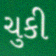
ચુકી